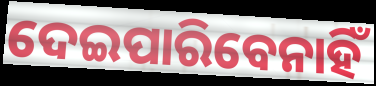
ଦେଇପାରିବେନାହିଁ